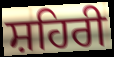
ਸ਼ਹਿਰੀ